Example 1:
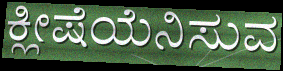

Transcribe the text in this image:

ಕ್ಲೀಷೆಯೆನಿಸುವ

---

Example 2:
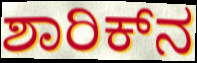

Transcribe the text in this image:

ಶಾರಿಕ್‌ನ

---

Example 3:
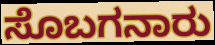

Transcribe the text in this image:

ಸೊಬಗನಾರು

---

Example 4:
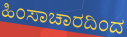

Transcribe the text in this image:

ಹಿಂಸಾಚಾರದಿಂದ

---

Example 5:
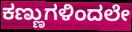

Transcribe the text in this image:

ಕಣ್ಣುಗಳಿಂದಲೇ